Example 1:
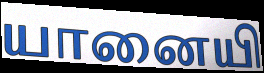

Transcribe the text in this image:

யானையி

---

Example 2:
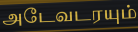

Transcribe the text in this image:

அடேவடரயும்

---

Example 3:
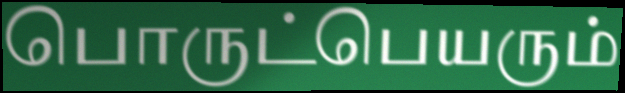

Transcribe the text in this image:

பொருட்பெயரும்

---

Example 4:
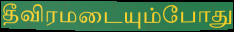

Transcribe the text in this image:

தீவிரமடையும்போது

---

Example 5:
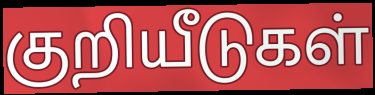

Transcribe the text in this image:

குறியீடுகள்